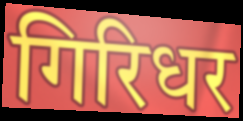
गिरिधर